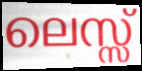
ലെസ്സ്